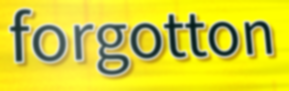
forgotton